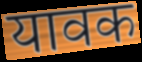
यावक